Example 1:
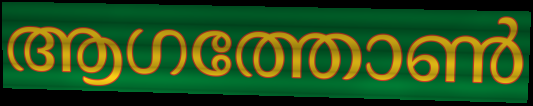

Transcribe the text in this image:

ആഗത്തോൺ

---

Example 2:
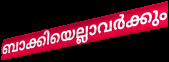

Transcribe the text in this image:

ബാക്കിയെല്ലാവർക്കും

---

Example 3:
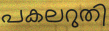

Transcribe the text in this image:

പകലറുതി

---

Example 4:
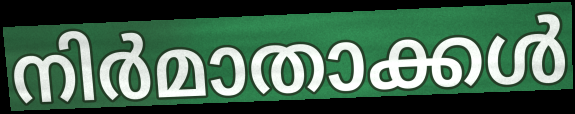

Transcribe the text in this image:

നിർമാതാക്കൾ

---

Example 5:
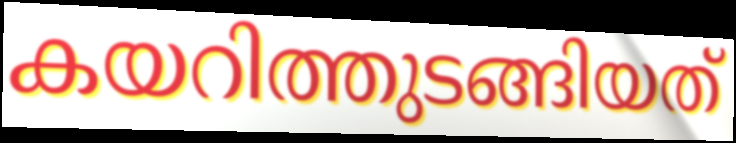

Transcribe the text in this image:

കയറിത്തുടങ്ങിയത്